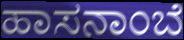
ಹಾಸನಾಂಬೆ